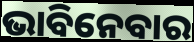
ଭାବିନେବାର